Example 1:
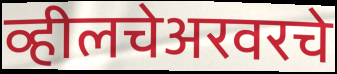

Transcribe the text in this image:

व्हीलचेअरवरचे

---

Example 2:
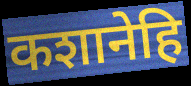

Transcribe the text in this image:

कशानेहि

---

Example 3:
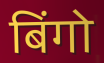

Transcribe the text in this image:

बिंगो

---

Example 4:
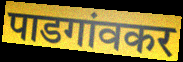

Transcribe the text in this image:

पाडगांवकर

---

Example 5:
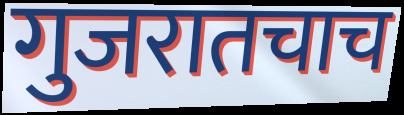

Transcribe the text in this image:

गुजरातचाच